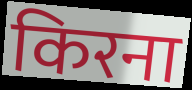
किरना